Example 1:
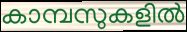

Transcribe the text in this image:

കാമ്പസുകളിൽ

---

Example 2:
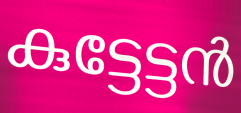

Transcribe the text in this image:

കുട്ടേട്ടൻ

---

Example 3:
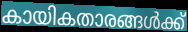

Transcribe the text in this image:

കായികതാരങ്ങൾക്ക്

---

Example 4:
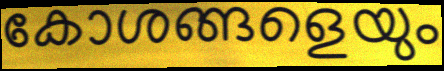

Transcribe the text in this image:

കോശങ്ങളെയും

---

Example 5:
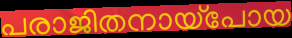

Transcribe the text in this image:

പരാജിതനായ്പോയ